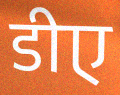
डीए